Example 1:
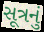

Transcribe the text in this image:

સૂત્રનું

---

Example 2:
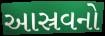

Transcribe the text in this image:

આસ્રવનો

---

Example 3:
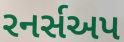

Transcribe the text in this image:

રનર્સઅપ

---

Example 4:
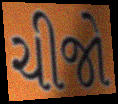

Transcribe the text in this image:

ચીજો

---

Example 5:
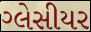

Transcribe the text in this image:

ગ્લેસીયર